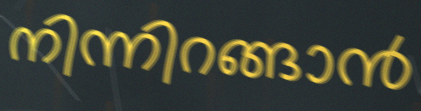
നിന്നിറങ്ങാൻ